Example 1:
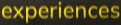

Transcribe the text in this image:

experiences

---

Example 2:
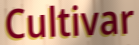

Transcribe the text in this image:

Cultivar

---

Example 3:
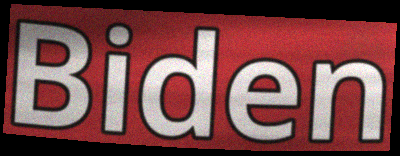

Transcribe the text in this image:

Biden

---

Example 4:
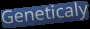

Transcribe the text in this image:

Geneticaly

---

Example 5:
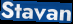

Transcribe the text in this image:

Stavan